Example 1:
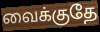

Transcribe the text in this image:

வைக்குதே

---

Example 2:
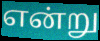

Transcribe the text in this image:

என்று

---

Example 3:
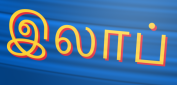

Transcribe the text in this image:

இலாப்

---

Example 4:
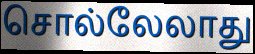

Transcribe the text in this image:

சொல்லேலாது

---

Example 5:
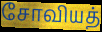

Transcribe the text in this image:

சோவியத்